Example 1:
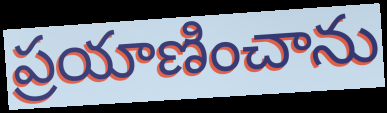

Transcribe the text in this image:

ప్రయాణించాను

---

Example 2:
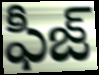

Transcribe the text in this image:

ఫీజ్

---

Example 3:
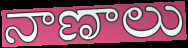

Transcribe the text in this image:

నాణాలు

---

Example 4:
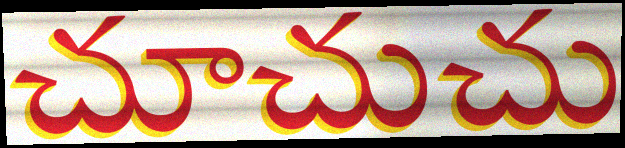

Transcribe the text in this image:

చూచుచు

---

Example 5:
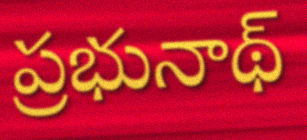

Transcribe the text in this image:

ప్రభునాథ్